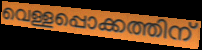
വെള്ളപ്പൊക്കത്തിന്